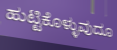
ಹುಟ್ಟಿಕೊಳ್ಳುವುದೂ